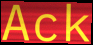
Ack